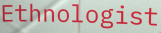
Ethnologist